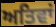
ਅਤਿਵਾਂ